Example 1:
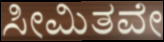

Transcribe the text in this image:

ಸೀಮಿತವೇ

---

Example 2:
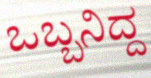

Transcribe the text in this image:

ಒಬ್ಬನಿದ್ದ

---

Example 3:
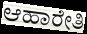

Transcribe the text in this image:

ಆಹಾರೇತಿ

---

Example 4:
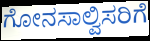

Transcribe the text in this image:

ಗೋನಸಾಲ್ವಿಸರಿಗೆ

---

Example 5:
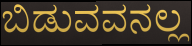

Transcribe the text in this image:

ಬಿಡುವವನಲ್ಲ